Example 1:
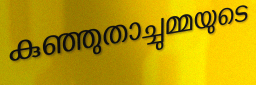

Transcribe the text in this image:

കുഞ്ഞുതാച്ചുമ്മയുടെ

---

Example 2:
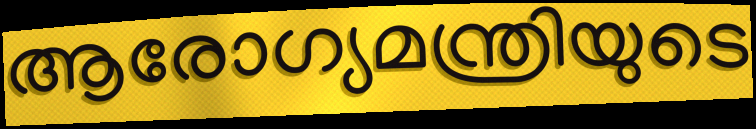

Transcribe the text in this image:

ആരോഗ്യമന്ത്രിയുടെ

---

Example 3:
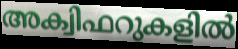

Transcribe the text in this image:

അക്വിഫറുകളിൽ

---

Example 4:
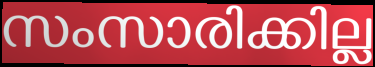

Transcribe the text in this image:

സംസാരിക്കില്ല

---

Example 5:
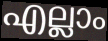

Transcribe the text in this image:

എല്ലാം